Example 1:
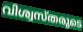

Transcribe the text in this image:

വിശ്വസ്തരുടെ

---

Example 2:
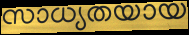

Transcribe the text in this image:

സാധ്യതയായ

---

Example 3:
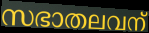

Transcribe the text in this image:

സഭാതലവന്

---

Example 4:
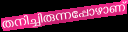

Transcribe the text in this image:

തനിച്ചിരുന്നപ്പോഴാണ്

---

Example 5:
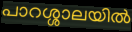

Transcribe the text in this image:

പാറശ്ശാലയിൽ